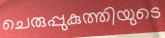
ചെരുപ്പുകുത്തിയുടെ